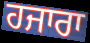
ਹਜਾਰਾ